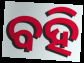
ବହି